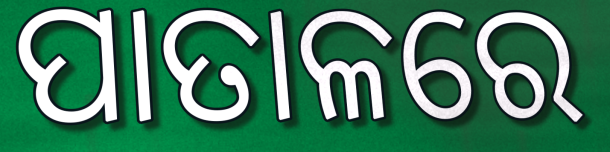
ପାତାଳରେ